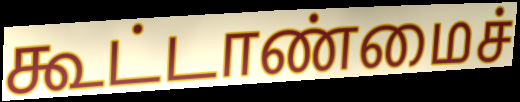
கூட்டாண்மைச்